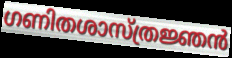
ഗണിതശാസ്ത്രജ്ഞൻ